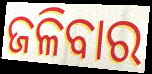
ଜଳିବାର